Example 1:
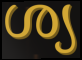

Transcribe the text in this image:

ശ്യ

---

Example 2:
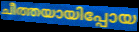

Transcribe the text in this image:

ചീത്തയായിപ്പോയ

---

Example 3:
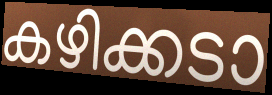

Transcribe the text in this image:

കഴിക്കടാ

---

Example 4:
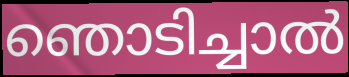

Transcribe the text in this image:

ഞൊടിച്ചാൽ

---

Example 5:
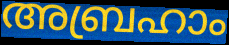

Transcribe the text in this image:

അബ്രഹാം